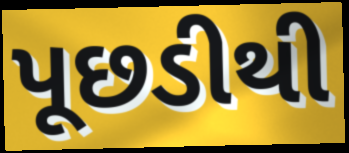
પૂછડીથી